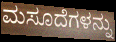
ಮಸೂದೆಗಳನ್ನು